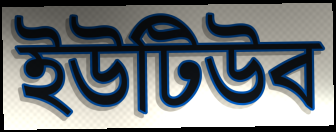
ইউটিউব